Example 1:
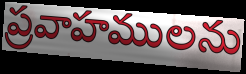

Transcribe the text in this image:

ప్రవాహములను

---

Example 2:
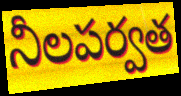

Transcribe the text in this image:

నీలపర్వత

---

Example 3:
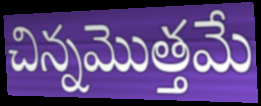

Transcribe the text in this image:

చిన్నమొత్తమే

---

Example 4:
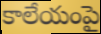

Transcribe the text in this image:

కాలేయంపై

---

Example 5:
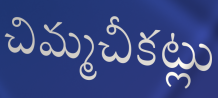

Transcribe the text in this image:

చిమ్మచీకట్లు